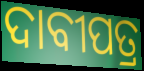
ଦାବୀପତ୍ର